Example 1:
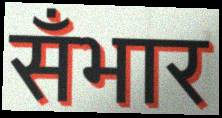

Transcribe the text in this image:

सँभार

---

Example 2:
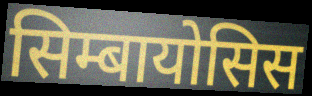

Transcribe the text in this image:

सिम्बायोसिस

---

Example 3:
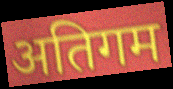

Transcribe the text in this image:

अतिगम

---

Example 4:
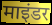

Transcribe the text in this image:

माइंडर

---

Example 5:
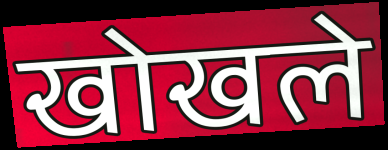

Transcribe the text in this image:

खोखले